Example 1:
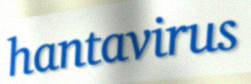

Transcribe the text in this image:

hantavirus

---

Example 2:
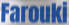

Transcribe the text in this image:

Farouki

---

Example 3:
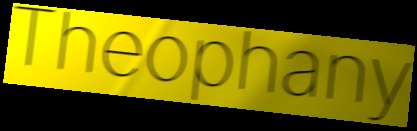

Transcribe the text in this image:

Theophany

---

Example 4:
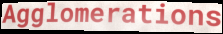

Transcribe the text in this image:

Agglomerations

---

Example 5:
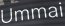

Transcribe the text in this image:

Ummai